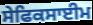
ਸੇਫਿਕਸਾਈਮ